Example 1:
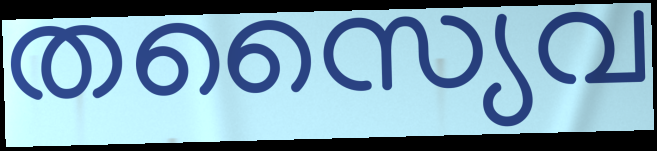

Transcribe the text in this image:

തസ്യൈവ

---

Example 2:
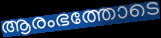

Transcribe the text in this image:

ആരംഭത്തോടെ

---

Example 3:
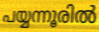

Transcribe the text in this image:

പയ്യന്നൂരിൽ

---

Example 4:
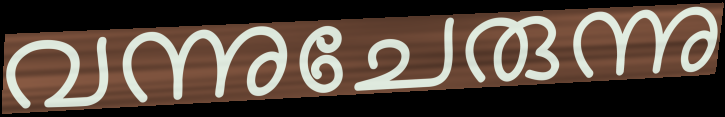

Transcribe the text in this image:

വന്നുചേരുന്നു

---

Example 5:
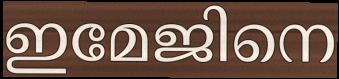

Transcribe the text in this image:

ഇമേജിനെ